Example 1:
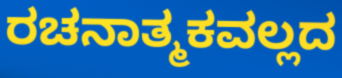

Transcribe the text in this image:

ರಚನಾತ್ಮಕವಲ್ಲದ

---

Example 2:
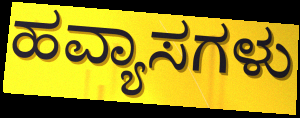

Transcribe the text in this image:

ಹವ್ಯಾಸಗಳು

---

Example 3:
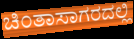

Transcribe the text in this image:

ಚಿಂತಾಸಾಗರದಲ್ಲಿ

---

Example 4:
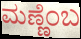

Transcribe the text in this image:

ಮಣ್ಣೆಂಬ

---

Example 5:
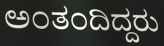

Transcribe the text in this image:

ಅಂತಂದಿದ್ದರು